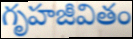
గృహజీవితం